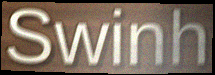
Swinh